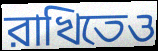
রাখিতেও